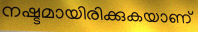
നഷ്ടമായിരിക്കുകയാണ്